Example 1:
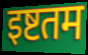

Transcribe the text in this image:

इष्टतम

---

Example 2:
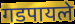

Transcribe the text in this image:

गडपायले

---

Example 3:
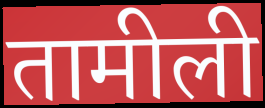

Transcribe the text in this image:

तामीली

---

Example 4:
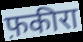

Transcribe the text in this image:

फ़कीरा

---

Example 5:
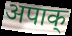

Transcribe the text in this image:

अपाक्